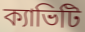
ক্যাভিটি